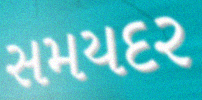
સમયદર